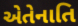
એતેનાતિ